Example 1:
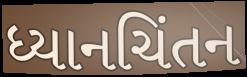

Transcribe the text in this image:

ધ્યાનચિંતન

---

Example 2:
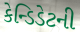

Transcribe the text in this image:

કેન્ડિડેટની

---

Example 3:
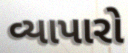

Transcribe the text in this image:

વ્યાપારો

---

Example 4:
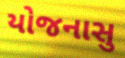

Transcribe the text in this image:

યોજનાસુ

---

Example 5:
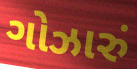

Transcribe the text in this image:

ગોઝારું